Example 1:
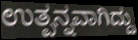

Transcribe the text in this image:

ಉತ್ಪನ್ನವಾಗಿದ್ದು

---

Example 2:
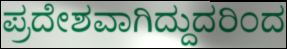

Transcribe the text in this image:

ಪ್ರದೇಶವಾಗಿದ್ದುದರಿಂದ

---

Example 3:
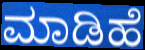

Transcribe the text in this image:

ಮಾಡಿಹೆ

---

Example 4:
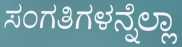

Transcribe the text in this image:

ಸಂಗತಿಗಳನ್ನೆಲ್ಲಾ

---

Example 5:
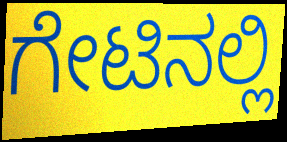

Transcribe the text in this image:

ಗೇಟಿನಲ್ಲಿ